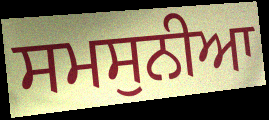
ਸਮਸੁਨੀਆ